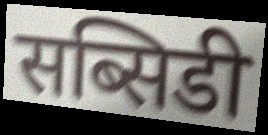
सब्सिडी